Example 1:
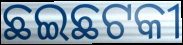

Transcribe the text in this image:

ଛଇଛଟକୀ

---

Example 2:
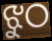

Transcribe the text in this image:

ଝୁଠ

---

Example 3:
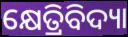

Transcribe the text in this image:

କ୍ଷେତ୍ରିବିଦ୍ୟା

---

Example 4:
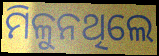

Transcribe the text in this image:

ମିଳୁନଥିଲେ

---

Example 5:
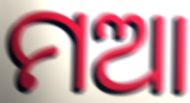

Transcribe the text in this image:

ମଆ